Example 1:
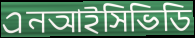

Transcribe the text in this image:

এনআইসিভিডি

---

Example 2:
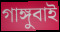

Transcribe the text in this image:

গাঙ্গুবাই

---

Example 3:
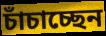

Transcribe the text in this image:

চাঁচাচ্ছেন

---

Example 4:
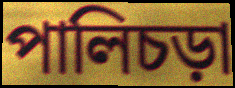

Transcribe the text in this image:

পালিচড়া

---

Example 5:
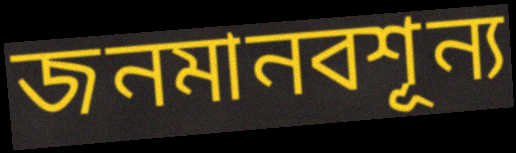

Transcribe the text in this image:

জনমানবশূন্য